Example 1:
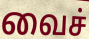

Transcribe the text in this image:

வைச்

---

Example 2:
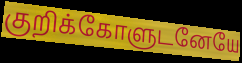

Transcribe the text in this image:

குறிக்கோளுடனேயே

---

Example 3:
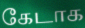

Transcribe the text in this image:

கேடாக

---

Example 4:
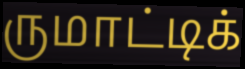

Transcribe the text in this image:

ருமாட்டிக்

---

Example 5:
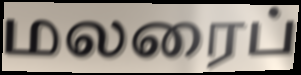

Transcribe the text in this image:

மலரைப்